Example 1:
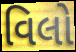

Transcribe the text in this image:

વિલો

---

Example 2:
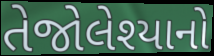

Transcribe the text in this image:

તેજોલેશ્યાનો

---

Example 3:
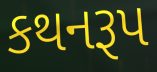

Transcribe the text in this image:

કથનરૂપ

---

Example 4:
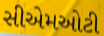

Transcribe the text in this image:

સીએમઓટી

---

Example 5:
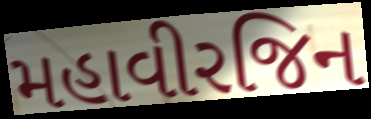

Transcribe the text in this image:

મહાવીરજિન